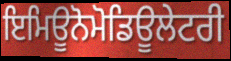
ਇਮਿਊਨੋਮੋਡਿਊਲੇਟਰੀ